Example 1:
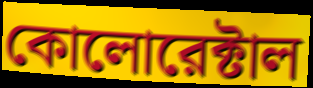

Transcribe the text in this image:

কোলোরেক্টাল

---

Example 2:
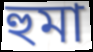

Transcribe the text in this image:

হুমা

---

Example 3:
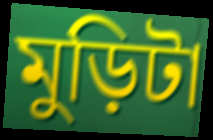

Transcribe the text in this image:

মুড়িটা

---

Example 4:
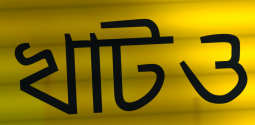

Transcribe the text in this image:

খাটও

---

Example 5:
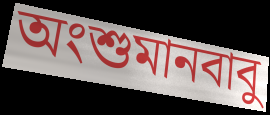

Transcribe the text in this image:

অংশুমানবাবু